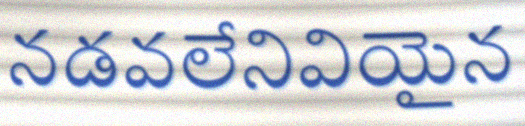
నడవలేనివియైన